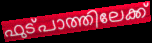
ഫുട്പാത്തിലേക്ക്